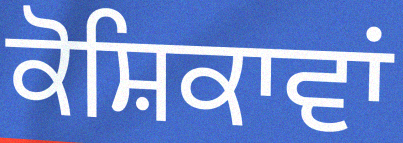
ਕੋਸ਼ਿਕਾਵਾਂ